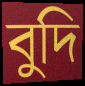
বুদি